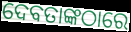
ଦେବତାଙ୍କଠାରେ